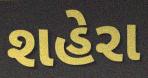
શહેરા